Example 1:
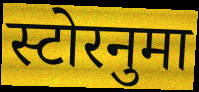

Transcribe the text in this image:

स्टोरनुमा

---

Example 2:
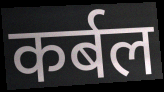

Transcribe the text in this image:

कर्बल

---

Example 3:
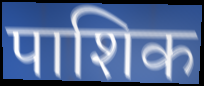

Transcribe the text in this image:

पाशिक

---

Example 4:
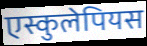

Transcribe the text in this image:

एस्कुलेपियस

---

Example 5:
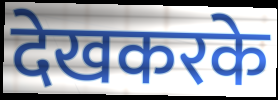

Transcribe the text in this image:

देखकरके